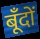
बूँदों